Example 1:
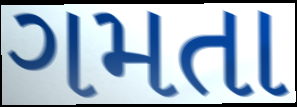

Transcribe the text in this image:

ગમતા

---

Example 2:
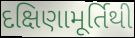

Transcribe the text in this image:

દક્ષિણામૂર્તિથી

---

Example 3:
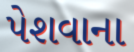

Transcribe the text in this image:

પેશવાના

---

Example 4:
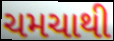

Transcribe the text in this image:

ચમચાથી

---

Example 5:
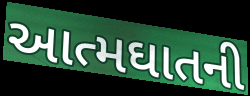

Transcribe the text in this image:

આત્મઘાતની